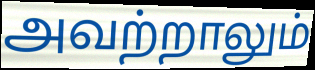
அவற்றாலும்